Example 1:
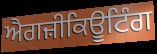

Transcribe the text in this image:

ਐਗਜ਼ੀਕਿਊਟਿੰਗ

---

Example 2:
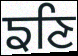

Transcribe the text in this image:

ਙਣਿ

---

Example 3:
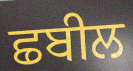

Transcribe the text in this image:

ਛਬੀਲ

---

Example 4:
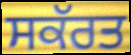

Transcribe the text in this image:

ਸਕੱਰਤ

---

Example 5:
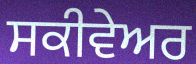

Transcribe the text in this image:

ਸਕੀਵੇਅਰ